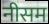
नीसम